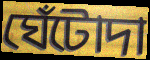
ঘেঁটোদা